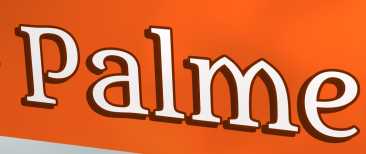
Palme